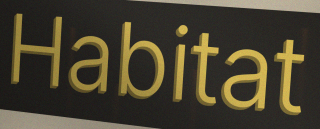
Habitat